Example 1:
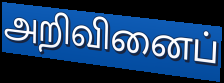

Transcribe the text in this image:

அறிவினைப்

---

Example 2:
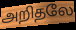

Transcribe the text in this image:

அறிதலே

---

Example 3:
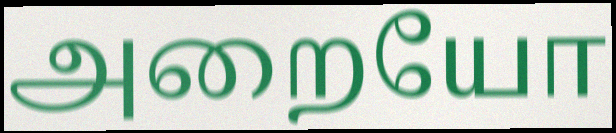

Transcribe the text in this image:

அறையோ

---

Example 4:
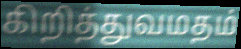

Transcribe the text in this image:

கிறித்துவமதம்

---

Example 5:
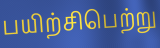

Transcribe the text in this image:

பயிற்சிபெற்று